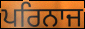
ਪਰਿਨਾਜ